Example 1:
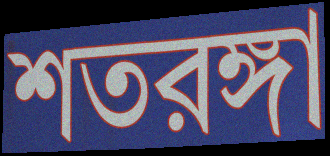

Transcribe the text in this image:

শতরঙ্গা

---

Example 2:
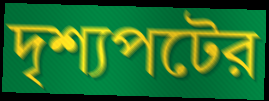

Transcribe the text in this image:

দৃশ্যপটের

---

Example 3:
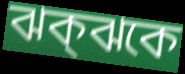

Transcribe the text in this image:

ঝক্‌ঝকে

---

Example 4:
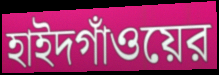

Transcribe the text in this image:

হাইদগাঁওয়ের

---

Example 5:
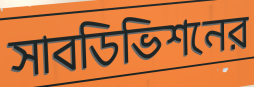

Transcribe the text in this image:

সাবডিভিশনের